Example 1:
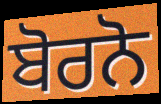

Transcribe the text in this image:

ਬੋਰਨੋ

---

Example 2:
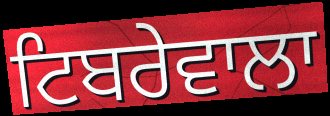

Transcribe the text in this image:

ਟਿਬਰੇਵਾਲਾ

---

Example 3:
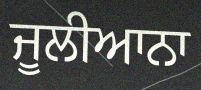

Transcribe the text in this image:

ਜੂਲੀਆਨਾ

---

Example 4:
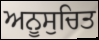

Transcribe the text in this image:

ਅਨੂਸੁਚਿਤ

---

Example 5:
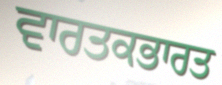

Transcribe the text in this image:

ਵਾਰਤਕਭਾਰਤ